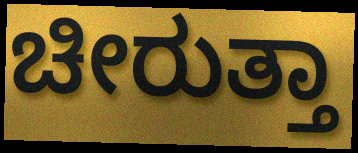
ಚೀರುತ್ತಾ